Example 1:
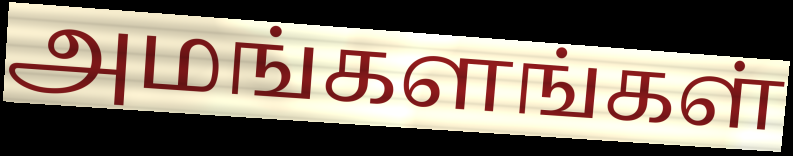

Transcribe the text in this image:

அமங்களங்கள்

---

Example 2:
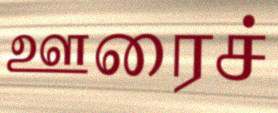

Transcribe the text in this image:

ஊரைச்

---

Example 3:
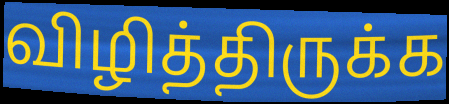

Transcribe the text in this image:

விழித்திருக்க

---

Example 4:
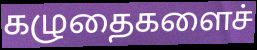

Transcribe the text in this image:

கழுதைகளைச்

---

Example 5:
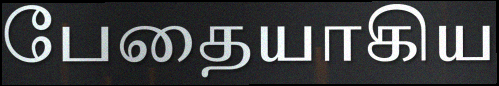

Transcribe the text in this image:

பேதையாகிய